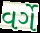
વર્ગે